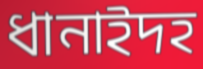
ধানাইদহ